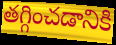
తగ్గించడానికి